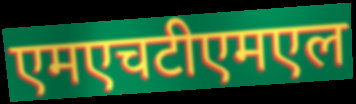
एमएचटीएमएल